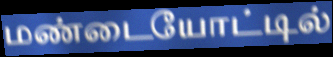
மண்டையோட்டில்